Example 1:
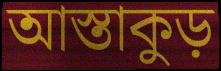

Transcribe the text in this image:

আস্তাকুড়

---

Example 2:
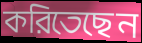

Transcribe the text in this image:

করিতেছেন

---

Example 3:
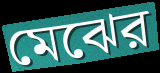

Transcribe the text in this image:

মেঝের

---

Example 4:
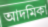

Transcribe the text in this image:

আদমিকা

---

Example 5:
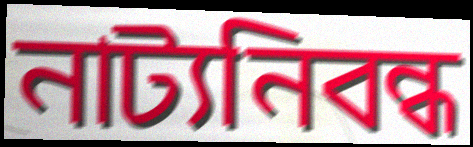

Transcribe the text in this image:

নাট্যনিবন্ধ